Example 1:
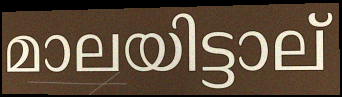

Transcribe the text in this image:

മാലയിട്ടാല്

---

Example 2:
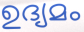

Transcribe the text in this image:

ഉദ്യമം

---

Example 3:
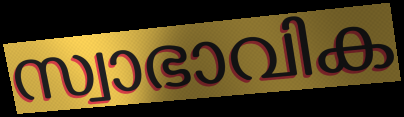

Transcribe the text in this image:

സ്വാഭാവിക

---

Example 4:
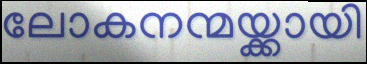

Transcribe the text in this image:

ലോകനന്മയ്ക്കായി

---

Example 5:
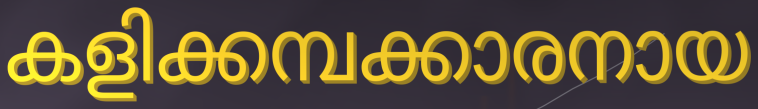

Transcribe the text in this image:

കളിക്കമ്പക്കാരനായ